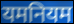
यमनियम